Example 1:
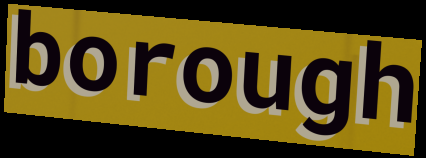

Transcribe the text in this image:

borough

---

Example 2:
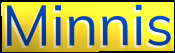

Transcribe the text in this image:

Minnis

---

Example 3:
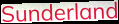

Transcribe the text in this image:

Sunderland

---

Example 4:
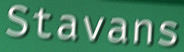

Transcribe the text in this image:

Stavans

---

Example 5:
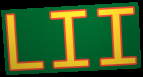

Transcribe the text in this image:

LII